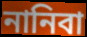
নানিবা